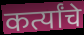
कर्त्यांचे